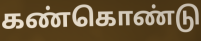
கண்கொண்டு